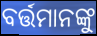
ବର୍ତ୍ତମାନଙ୍କୁ